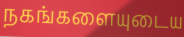
நகங்களையுடைய